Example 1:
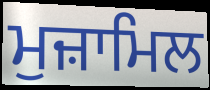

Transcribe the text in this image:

ਮੁਜ਼ਾਮਿਲ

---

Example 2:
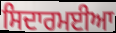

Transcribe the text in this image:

ਸਿਦਾਰਮਈਆ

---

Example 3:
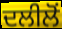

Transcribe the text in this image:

ਦਲੀਲੋਂ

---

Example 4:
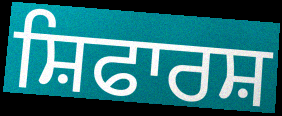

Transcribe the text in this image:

ਸ਼ਿਫਾਰਸ਼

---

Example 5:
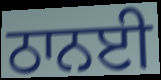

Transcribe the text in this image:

ਠਾਨਈ